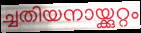
ച്ചതിയനായ്ക്കുറ്റം